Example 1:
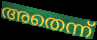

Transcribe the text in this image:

അതെന്ന്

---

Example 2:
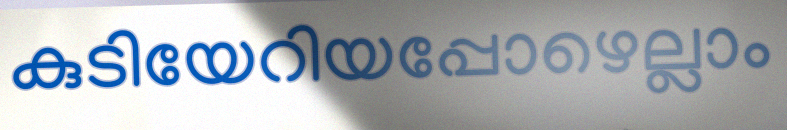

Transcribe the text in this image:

കുടിയേറിയപ്പോഴെല്ലാം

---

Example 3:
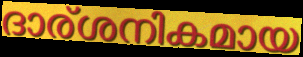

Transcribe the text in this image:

ദാര്ശനികമായ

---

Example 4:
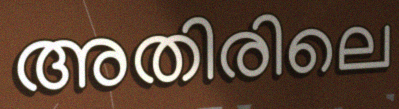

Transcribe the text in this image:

അതിരിലെ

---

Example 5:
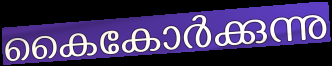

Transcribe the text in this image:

കൈകോർക്കുന്നു